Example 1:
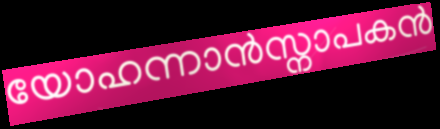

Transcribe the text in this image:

യോഹന്നാൻസ്നാപകൻ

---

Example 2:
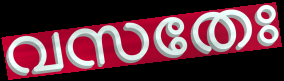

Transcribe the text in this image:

വസതേഃ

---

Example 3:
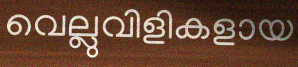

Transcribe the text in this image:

വെല്ലുവിളികളായ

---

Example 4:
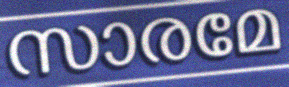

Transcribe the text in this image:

സാരമേ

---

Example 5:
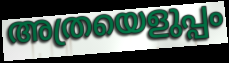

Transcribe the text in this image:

അത്രയെളുപ്പം